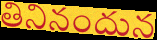
తినినందున